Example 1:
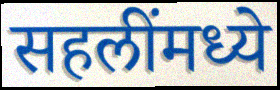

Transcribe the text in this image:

सहलींमध्ये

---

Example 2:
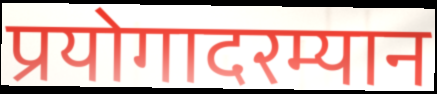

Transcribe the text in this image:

प्रयोगादरम्यान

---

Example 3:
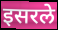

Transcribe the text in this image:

इसरले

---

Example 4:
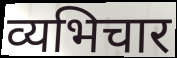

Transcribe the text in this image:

व्यभिचार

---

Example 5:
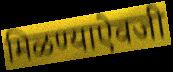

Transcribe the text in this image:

मिळण्याऐवजी